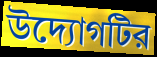
উদ্যোগটির